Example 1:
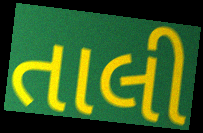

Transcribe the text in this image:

તાલી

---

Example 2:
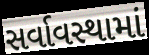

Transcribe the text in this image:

સર્વાવસ્થામાં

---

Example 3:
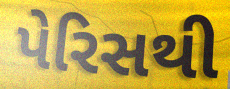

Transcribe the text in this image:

પેરિસથી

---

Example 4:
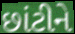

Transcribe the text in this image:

છાંટીને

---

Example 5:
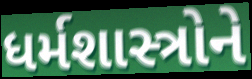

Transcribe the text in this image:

ધર્મશાસ્ત્રોને